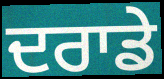
ਦਰਾਡੇ